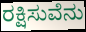
ರಕ್ಷಿಸುವೆನು